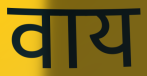
वाय